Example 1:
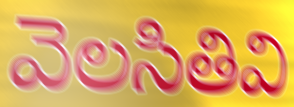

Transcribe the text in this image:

వెలసితివి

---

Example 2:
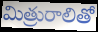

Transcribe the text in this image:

మిత్రురాలితో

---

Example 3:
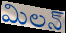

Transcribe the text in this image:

మిలన్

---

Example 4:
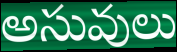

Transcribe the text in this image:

అసువులు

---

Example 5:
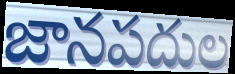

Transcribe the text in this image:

జానపదుల